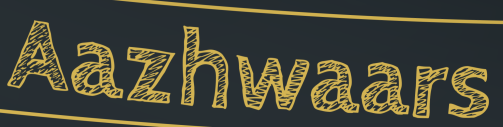
Aazhwaars